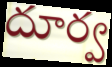
దూర్వ